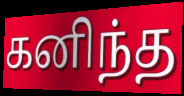
கனிந்த